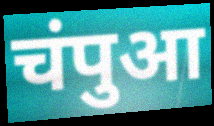
चंपुआ